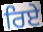
ਰਿਏ